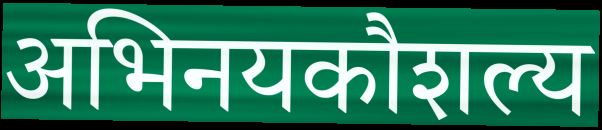
अभिनयकौशल्य